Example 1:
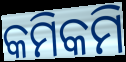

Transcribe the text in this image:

କମିକମି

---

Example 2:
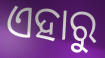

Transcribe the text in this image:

ଏହାରୁ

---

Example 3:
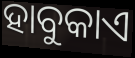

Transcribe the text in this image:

ହାବୁକାଏ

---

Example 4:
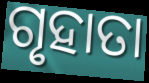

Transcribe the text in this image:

ଗୃହାତା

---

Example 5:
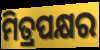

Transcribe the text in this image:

ମିତ୍ରପକ୍ଷର